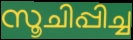
സൂചിപ്പിച്ച